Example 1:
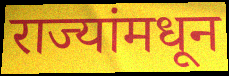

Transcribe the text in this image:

राज्यांमधून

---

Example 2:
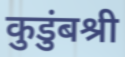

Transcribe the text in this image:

कुडुंबश्री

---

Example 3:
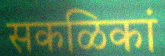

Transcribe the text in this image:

सकळिकां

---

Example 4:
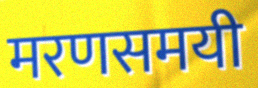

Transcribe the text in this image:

मरणसमयी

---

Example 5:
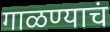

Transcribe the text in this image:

गाळण्याचं